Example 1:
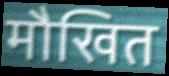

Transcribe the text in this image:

मौखित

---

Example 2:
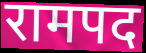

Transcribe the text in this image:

रामपद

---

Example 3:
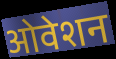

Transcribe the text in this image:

ओवेशन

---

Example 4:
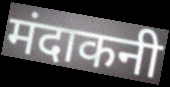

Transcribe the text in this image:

मंदाकनी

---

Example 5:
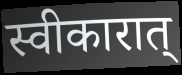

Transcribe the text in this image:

स्वीकारात्